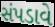
સંપડાવે